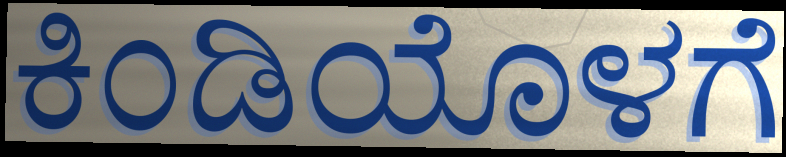
ಕಿಂಡಿಯೊಳಗೆ